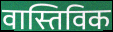
वास्तिविक